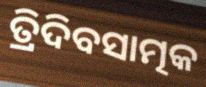
ତ୍ରିଦିବସାତ୍ମକ